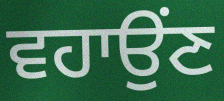
ਵਹਾਉਂਣ